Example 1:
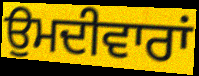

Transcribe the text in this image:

ਉਮਦੀਵਾਰਾਂ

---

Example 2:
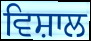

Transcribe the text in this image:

ਵਿਸ਼ਾਲ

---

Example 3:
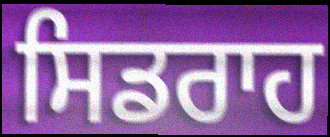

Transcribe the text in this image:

ਸਿਡਰਾਹ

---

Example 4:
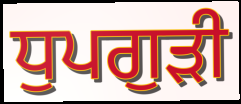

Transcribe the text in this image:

ਧੁਪਗੁੜੀ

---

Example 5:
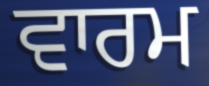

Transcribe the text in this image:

ਵਾਰਮ